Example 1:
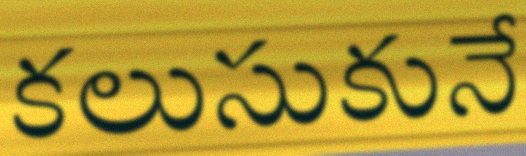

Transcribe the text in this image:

కలుసుకునే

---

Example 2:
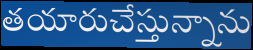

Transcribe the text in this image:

తయారుచేస్తున్నాను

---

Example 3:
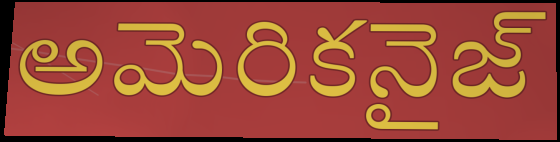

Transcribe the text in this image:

అమెరికనైజ్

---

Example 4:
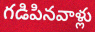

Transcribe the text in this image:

గడిపినవాళ్లు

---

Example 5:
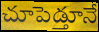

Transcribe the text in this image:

చూపెడ్తూనే